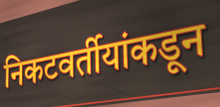
निकटवर्तीयांकडून